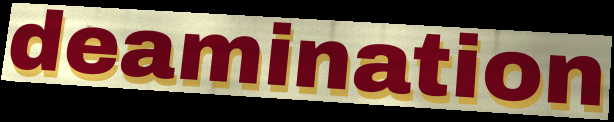
deamination